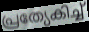
പ്രത്യേകിച്ച്